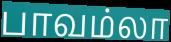
பாவம்லா